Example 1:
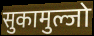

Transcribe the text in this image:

सुकामुल्जो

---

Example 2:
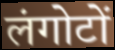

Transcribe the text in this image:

लंगोटों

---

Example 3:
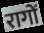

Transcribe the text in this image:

रागों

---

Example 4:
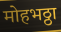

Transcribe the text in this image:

मोहभठ्ठा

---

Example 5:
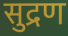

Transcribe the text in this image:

सुद्रण